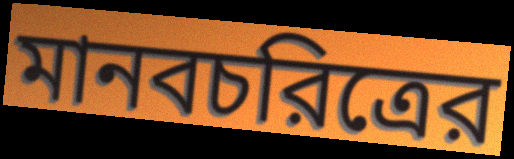
মানবচরিত্রের